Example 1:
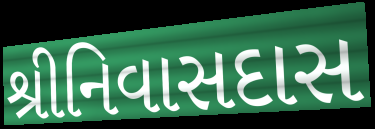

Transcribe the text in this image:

શ્રીનિવાસદાસ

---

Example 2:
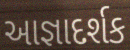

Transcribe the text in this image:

આજ્ઞાદર્શક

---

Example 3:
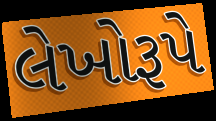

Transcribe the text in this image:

લેખોરૂપે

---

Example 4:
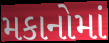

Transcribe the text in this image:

મકાનોમાં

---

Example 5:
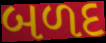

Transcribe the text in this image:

બળદ